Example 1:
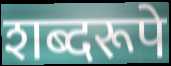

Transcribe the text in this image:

शब्दरूपे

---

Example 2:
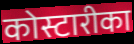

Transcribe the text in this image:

कोस्टारीका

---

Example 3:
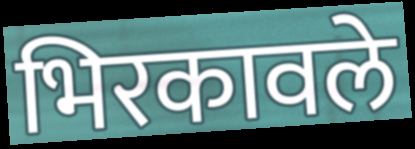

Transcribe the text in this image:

भिरकावले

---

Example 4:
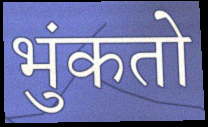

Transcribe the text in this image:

भुंकतो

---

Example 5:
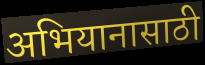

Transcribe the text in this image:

अभियानासाठी